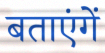
बताएंगें